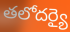
తలోదర్యై